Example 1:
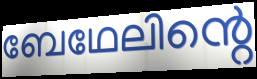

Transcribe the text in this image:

ബേഥേലിന്റെ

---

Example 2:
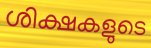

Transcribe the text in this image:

ശിക്ഷകളുടെ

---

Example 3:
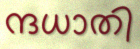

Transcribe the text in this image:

ന്ദധാതി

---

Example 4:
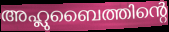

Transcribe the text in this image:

അഹ്ലുബൈത്തിന്റെ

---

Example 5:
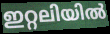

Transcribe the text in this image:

ഇറ്റലിയിൽ